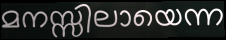
മനസ്സിലായെന്ന